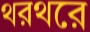
থরথরে